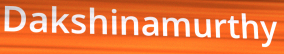
Dakshinamurthy